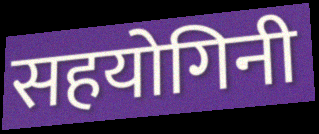
सहयोगिनी